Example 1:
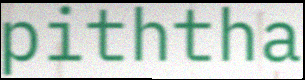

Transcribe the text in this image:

piththa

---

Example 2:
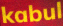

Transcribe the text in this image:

kabul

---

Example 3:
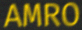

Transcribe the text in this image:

AMRO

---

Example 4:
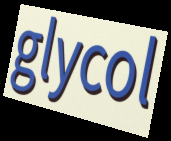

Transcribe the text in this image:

glycol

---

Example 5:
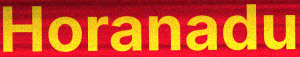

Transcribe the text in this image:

Horanadu